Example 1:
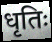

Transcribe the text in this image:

धृतिः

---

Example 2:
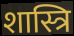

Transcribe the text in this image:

शास्त्रि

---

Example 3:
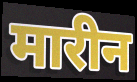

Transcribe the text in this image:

मारीन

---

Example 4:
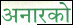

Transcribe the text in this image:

अनारको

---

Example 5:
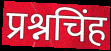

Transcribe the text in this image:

प्रश्नचिंह